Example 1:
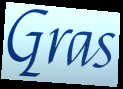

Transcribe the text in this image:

Gras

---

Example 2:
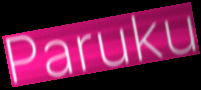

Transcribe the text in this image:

Paruku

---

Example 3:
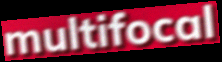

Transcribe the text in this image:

multifocal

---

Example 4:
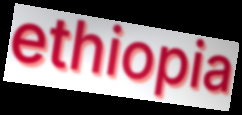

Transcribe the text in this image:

ethiopia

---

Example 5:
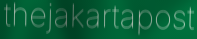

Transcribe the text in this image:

thejakartapost